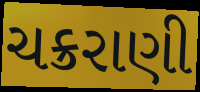
ચક્રરાણી